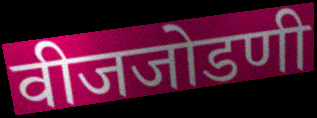
वीजजोडणी